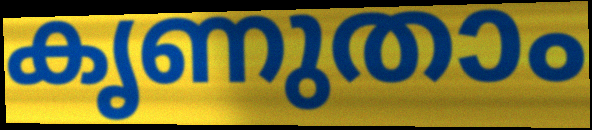
കൃണുതാം